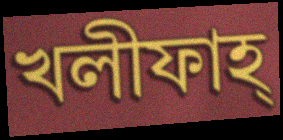
খলীফাহ্